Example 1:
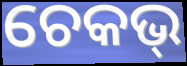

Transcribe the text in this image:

ଚେକଭ୍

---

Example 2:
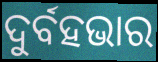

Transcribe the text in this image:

ଦୁର୍ବହଭାର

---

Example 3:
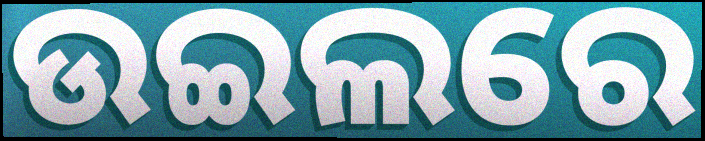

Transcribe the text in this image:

ଉଇଲରେ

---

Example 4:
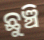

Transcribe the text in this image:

ଛୁଞ୍ଚି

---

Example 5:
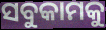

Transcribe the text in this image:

ସବୁକାମକୁ